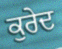
ਕੁਰੇਦ